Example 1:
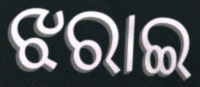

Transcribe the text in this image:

ଝରାଇ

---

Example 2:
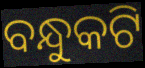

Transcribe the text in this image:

ବନ୍ଧୁକଟି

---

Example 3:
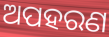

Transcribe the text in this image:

ଅପହରଣ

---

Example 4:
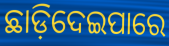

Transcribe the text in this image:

ଛାଡ଼ିଦେଇପାରେ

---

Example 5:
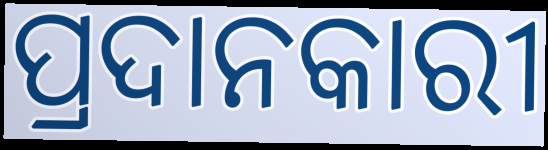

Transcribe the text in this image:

ପ୍ରଦାନକାରୀ